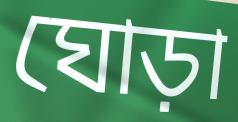
ঘোড়া